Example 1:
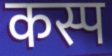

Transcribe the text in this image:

कस्प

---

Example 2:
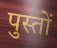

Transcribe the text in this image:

पुस्तों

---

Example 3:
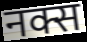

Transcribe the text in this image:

नक्स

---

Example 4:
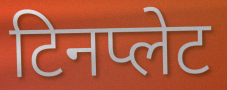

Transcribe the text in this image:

टिनप्लेट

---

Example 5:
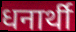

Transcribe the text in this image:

धनार्थी